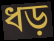
ধড়